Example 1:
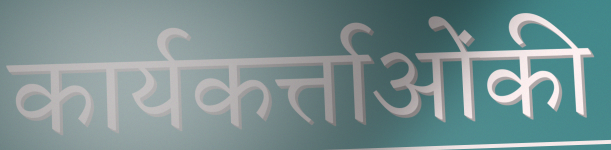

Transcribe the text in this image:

कार्यकर्त्ताओंकी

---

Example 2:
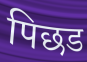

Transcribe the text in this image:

पिछड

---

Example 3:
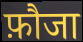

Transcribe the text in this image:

फ़ौजा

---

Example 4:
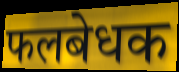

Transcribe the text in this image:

फलबेधक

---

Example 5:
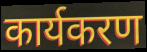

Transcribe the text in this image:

कार्यकरण